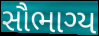
સૌભાગ્ય